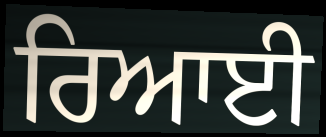
ਰਿਆਈ